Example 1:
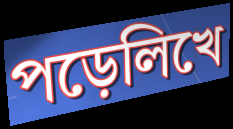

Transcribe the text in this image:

পড়েলিখে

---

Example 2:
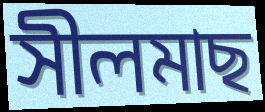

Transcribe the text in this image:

সীলমাছ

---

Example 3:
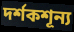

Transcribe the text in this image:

দর্শকশূন্য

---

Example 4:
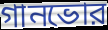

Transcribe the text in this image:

গানভোর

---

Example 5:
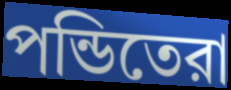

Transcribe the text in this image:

পন্ডিতেরা